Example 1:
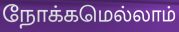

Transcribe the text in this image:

நோக்கமெல்லாம்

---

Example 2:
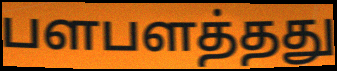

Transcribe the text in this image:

பளபளத்தது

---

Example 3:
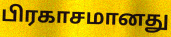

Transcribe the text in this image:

பிரகாசமானது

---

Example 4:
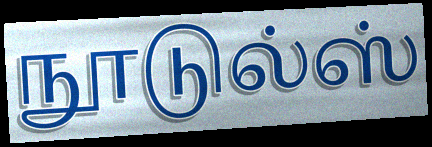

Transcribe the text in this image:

நூடுல்ஸ்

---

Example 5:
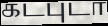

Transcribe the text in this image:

கடபுடா